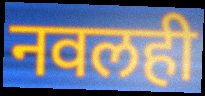
नवलही